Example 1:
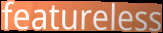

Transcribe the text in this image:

featureless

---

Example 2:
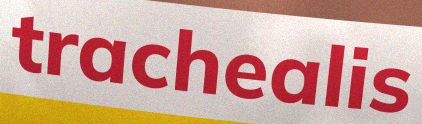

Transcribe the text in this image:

trachealis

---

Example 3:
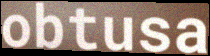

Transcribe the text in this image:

obtusa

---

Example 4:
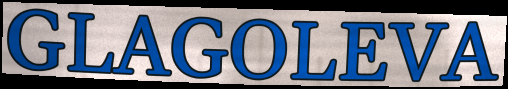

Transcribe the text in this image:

GLAGOLEVA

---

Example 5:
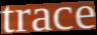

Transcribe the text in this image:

trace